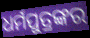
ଧର୍ମପୁତ୍ରଙ୍କର